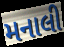
મનાલી